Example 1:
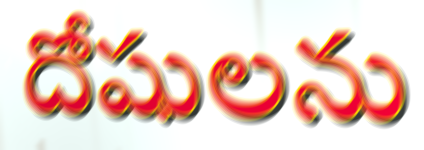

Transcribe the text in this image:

దోషులను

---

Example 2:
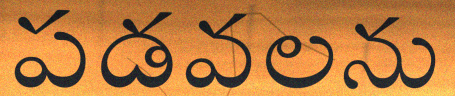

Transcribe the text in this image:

పడవలను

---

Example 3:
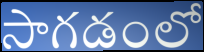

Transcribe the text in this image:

సాగడంలో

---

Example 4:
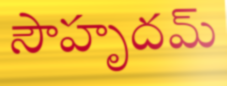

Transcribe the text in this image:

సౌహృదమ్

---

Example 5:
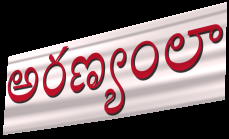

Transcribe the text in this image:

అరణ్యంలా